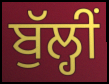
ਬੁੱਲ੍ਹੀਂ